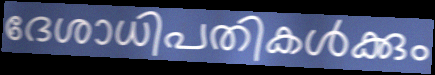
ദേശാധിപതികൾക്കും